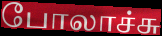
போலாச்சு